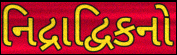
નિદ્રાદ્વિકનો